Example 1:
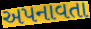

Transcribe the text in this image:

અપનાવતા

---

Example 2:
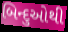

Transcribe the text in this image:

બિન્દુઓથી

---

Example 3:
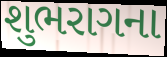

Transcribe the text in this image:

શુભરાગના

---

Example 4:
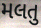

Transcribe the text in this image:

મલતુ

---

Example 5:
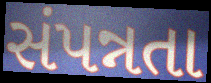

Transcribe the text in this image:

સંપન્નતા